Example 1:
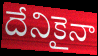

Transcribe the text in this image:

దేనికైనా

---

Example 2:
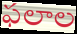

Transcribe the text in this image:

ఫలాల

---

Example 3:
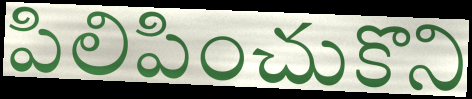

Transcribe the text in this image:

పిలిపించుకొని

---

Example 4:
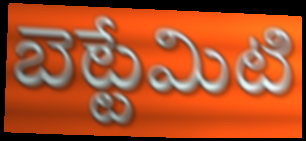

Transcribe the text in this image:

బెట్టేమిటి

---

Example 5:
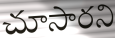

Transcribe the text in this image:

చూసారని